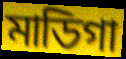
মাডিগা